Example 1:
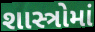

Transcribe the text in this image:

શાસ્ત્રોમાં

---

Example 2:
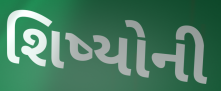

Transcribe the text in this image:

શિષ્યોની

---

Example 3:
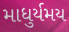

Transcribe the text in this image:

માધુર્યમય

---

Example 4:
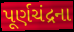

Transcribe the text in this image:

પૂર્ણચંદ્રના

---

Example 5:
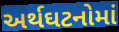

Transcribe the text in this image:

અર્થઘટનોમાં